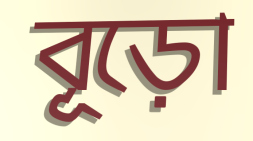
বূড়ো